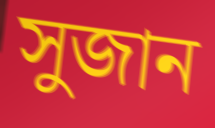
সুজান